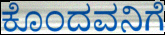
ಕೊಂದವನಿಗೆ